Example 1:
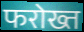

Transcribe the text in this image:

फरोख्‍त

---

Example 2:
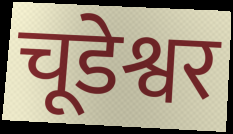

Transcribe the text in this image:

चूडेश्वर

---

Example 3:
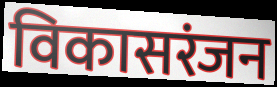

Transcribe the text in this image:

विकासरंजन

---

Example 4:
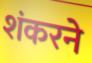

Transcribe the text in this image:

शंकरने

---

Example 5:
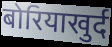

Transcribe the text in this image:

बोरियाखुर्द